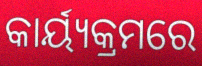
କାର୍ୟ୍ୟକ୍ରମରେ